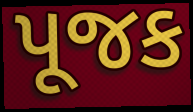
પૂજક